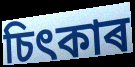
চিৎকাৰ